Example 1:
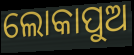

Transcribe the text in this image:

ଲୋକାପୁଅ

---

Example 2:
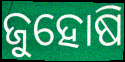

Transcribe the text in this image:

ଜୁହୋଷି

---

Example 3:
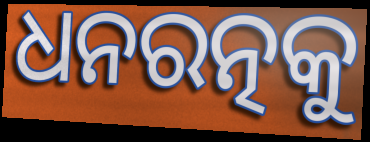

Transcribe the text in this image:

ଧନରତ୍ନକୁ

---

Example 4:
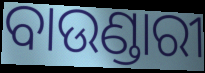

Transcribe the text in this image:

ବାଉଣ୍ଡାରୀ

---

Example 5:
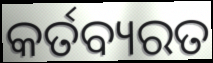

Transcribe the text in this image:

କର୍ତବ୍ୟରତ